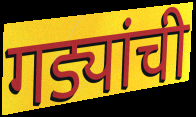
गड्यांची